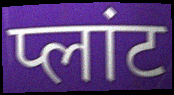
प्‍लांट